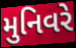
મુનિવરે